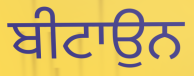
ਬੀਟਾਉਨ